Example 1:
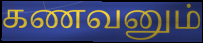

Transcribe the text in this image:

கணவனும்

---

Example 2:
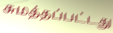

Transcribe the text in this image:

சுமத்தப்பட்டது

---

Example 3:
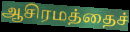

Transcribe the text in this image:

ஆசிரமத்தைச்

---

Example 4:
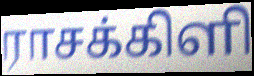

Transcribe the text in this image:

ராசக்கிளி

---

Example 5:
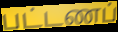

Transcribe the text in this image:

பட்டணப்